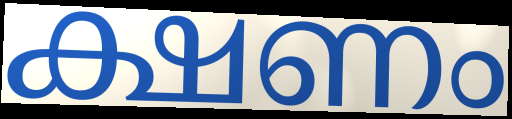
ക്ഷണം